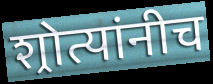
श्रोत्यांनीच